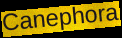
Canephora